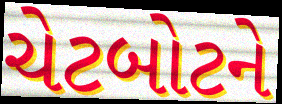
ચેટબોટને